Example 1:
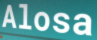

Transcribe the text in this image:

Alosa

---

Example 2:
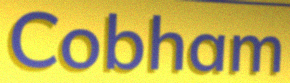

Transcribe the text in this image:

Cobham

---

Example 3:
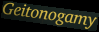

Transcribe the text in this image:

Geitonogamy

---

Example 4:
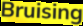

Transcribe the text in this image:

Bruising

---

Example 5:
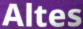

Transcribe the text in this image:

Altes